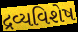
દ્રવ્યવિશેષ